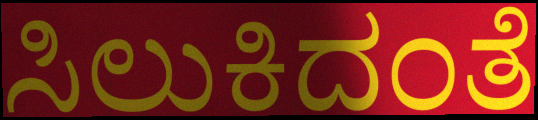
ಸಿಲುಕಿದಂತೆ